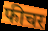
फीचर